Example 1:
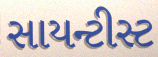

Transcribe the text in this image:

સાયન્ટીસ્ટ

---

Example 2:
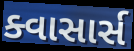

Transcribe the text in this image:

ક્વાસાર્સ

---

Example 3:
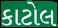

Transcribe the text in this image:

કાટોલ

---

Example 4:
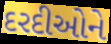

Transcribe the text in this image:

દરદીઓને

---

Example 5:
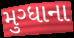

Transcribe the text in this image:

મુગ્ધાના